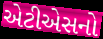
એટીએસનો